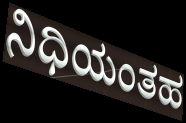
ನಿಧಿಯಂತಹ